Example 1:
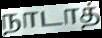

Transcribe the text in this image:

நாடாத்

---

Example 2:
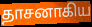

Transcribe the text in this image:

தாசனாகிய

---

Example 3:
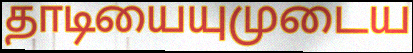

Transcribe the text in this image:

தாடியையுமுடைய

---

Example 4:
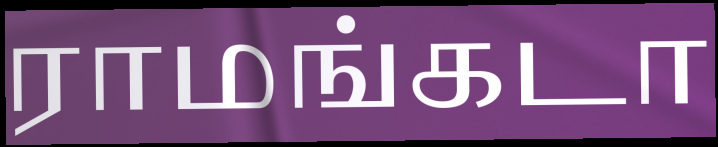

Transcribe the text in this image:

ராமங்கடா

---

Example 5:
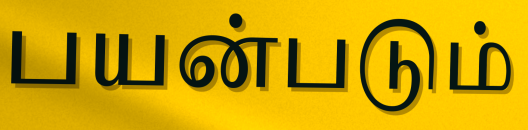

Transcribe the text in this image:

பயன்படும்